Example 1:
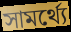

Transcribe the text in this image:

সামর্থ্যে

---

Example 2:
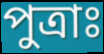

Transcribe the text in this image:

পুত্রাঃ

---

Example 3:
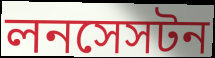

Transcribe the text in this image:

লনসেসটন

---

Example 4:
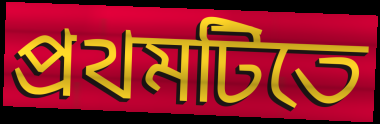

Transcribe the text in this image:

প্রথমটিতে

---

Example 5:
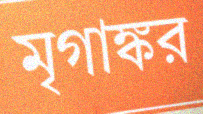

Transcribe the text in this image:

মৃগাঙ্কর